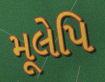
મૂલેપિ